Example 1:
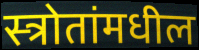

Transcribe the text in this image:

स्त्रोतांमधील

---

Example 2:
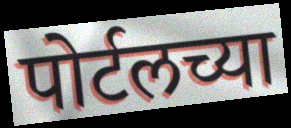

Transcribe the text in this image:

पोर्टलच्या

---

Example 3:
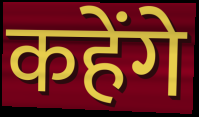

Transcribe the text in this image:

कहेंगे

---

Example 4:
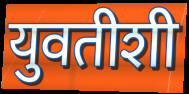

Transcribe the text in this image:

युवतीशी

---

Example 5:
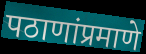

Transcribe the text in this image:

पठाणांप्रमाणे